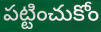
పట్టించుకోం